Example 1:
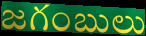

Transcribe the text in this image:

జగంబులు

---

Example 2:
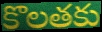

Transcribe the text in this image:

కొలతకు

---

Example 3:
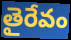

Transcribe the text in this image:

తైరేవం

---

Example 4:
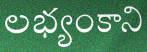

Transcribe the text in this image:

లభ్యంకాని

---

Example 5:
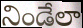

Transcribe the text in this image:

నిండేలా